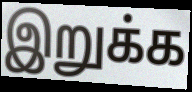
இறுக்க